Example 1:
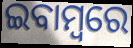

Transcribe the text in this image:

ଇବାମ୍ବରେ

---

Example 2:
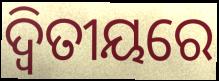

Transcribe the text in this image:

ଦ୍ୱିତୀୟରେ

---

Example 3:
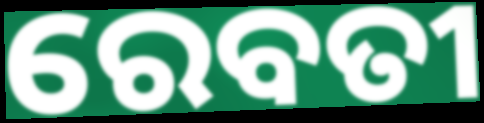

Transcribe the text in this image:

ରେବତୀ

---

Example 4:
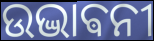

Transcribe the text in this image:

ଉଦ୍ଭାଵନୀ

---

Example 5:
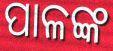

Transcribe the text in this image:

ପାଳଙ୍କ